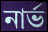
নার্ভ